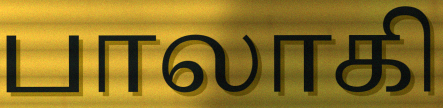
பாலாகி